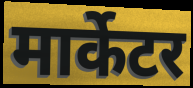
मार्केटर